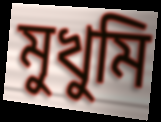
মুখুমি